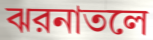
ঝরনাতলে